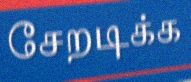
சேறடிக்க